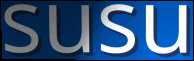
susu